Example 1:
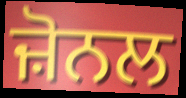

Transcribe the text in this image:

ਜ਼ੋਨਲ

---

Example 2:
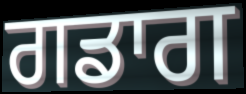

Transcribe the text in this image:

ਗਡਾਗ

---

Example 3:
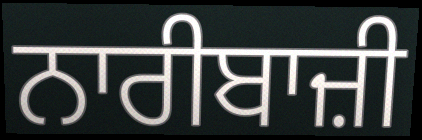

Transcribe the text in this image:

ਨਾਰੀਬਾਜ਼ੀ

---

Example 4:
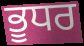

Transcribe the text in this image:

ਭੂਧਰ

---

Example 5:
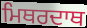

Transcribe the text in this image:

ਮਿਥਰਦਾਥ